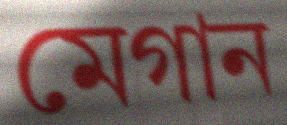
মেগান